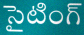
సైటింగ్